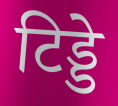
टिड्डे